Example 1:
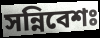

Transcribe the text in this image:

সন্নিবেশঃ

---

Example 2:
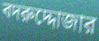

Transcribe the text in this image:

বদরুদ্দোজার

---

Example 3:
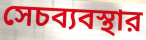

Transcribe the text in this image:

সেচব্যবস্থার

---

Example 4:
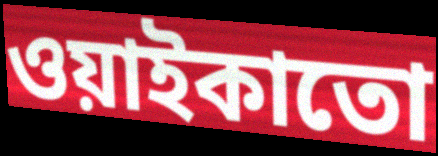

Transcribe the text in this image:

ওয়াইকাতো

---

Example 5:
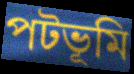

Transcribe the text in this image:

পটভূমি